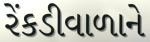
રેંકડીવાળાને